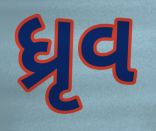
ધ્રૃવ